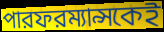
পারফরম্যান্সকেই